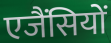
एजैंसियों